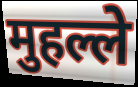
मुहल्ले